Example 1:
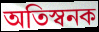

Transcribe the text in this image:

অতিস্বনক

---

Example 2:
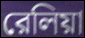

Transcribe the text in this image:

রেলিয়া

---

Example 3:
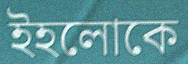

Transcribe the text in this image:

ইহলোকে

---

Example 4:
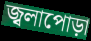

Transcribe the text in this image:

জ্বলাপোড়া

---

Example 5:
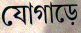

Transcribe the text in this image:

যোগাড়ে